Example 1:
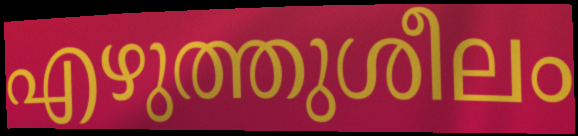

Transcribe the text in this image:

എഴുത്തുശീലം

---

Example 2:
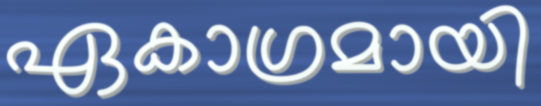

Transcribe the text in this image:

ഏകാഗ്രമായി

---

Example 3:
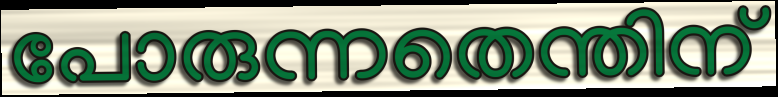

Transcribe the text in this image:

പോരുന്നതെന്തിന്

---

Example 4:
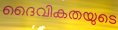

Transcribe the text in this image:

ദൈവികതയുടെ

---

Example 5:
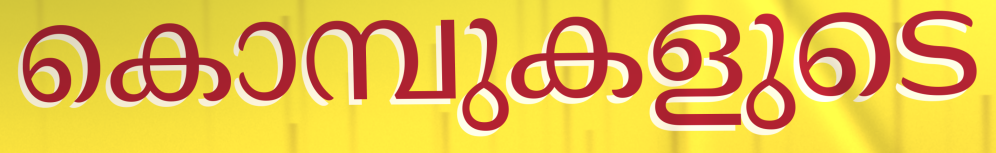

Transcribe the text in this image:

കൊമ്പുകളുടെ